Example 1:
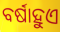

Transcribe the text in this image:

ବର୍ଷାହୁଏ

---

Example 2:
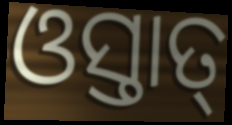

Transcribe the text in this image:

ଓସ୍ତାତ୍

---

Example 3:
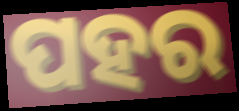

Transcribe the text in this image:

ପହର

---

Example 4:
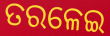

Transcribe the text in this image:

ତରଳେଇ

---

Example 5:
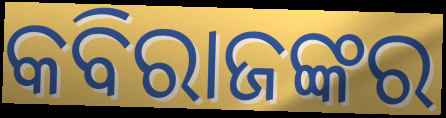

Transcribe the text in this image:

କବିରାଜଙ୍କର